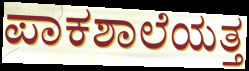
ಪಾಕಶಾಲೆಯತ್ತ